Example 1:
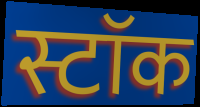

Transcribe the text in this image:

स्‍टॉक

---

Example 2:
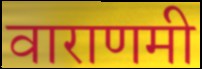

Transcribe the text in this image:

वाराणमी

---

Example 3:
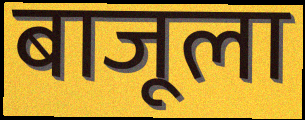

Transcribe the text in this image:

बाजूला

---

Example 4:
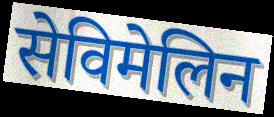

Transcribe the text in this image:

सेविमेलिन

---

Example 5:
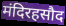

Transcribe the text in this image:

मंदिरहसौद